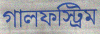
গালফস্ট্রিম